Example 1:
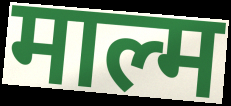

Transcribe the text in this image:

माल्म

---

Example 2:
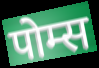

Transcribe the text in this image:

पोम्स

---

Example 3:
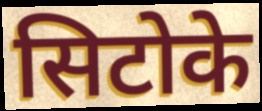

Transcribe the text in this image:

सिटोके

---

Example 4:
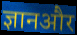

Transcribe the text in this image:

ज्ञानऔर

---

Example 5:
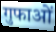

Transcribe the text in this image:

गुफाओं